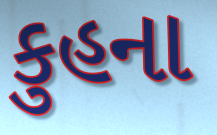
કુહના